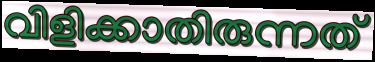
വിളിക്കാതിരുന്നത്